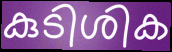
കുടിശിക